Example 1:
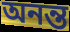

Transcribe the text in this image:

অনন্ত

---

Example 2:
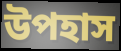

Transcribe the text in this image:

উপহাস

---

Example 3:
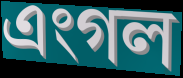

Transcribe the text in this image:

এংগল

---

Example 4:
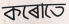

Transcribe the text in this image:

কৰোতে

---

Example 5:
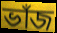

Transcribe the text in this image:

ভাঁজ